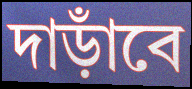
দাড়াঁবে